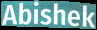
Abishek